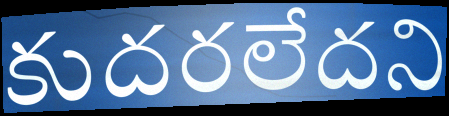
కుదరలేదని